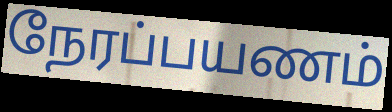
நேரப்பயணம்